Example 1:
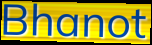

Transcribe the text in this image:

Bhanot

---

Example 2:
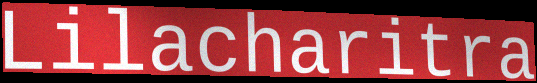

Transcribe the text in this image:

Lilacharitra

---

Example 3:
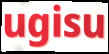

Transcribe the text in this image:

ugisu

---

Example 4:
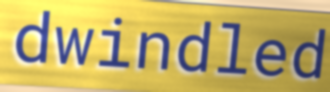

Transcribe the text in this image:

dwindled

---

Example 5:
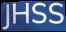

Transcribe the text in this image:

JHSS